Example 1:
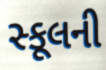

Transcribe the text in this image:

સ્કૂલની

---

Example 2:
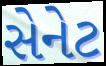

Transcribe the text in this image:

સેનેટ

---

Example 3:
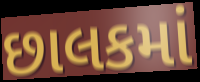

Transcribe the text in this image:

છાલકમાં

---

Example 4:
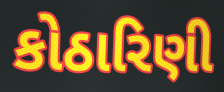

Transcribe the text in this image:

કોઠારિણી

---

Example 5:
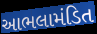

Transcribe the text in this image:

આભલામંડિત